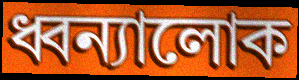
ধ্বন্যালোক